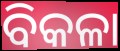
ବିକଳା